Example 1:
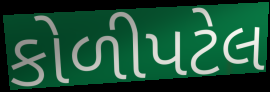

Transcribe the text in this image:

કોળીપટેલ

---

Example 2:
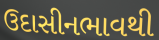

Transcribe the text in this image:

ઉદાસીનભાવથી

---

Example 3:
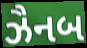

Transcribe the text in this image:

ઝૈનબ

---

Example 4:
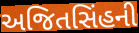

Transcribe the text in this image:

અજિતસિંહની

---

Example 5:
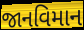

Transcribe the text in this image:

જાનવિમાન